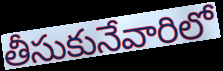
తీసుకునేవారిలో